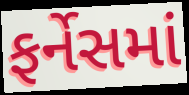
ફર્નેસમાં